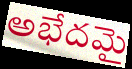
అభేదమై